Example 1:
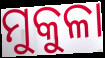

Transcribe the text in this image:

ମୁକୁଳା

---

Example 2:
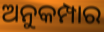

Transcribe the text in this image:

ଅନୁକମ୍ପାର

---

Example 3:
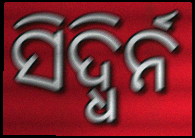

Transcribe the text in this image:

ସିଦ୍ଧିର୍ନ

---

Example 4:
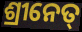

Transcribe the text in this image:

ଶ୍ରୀନେତ୍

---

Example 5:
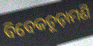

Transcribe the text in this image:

ବିବେକଚୂଡ଼ାମଣି